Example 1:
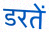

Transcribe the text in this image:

डरतें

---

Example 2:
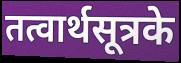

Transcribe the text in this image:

तत्वार्थसूत्रके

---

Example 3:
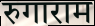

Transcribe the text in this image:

रुगाराम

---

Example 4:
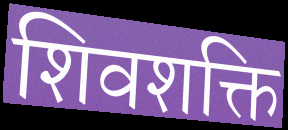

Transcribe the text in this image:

शिवशक्ति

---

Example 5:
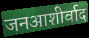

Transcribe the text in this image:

जनआशीर्वाद